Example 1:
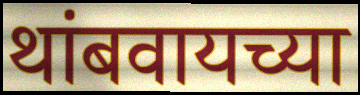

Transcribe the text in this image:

थांबवायच्या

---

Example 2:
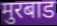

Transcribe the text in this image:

मुरबाड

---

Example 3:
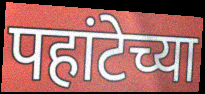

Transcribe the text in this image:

पहांटेच्या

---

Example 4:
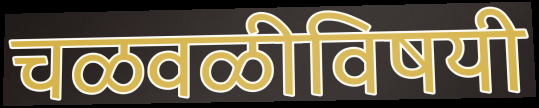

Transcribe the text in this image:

चळवळीविषयी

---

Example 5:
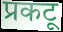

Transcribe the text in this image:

प्रकटू